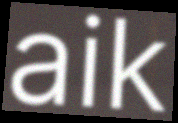
aik